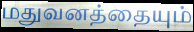
மதுவனத்தையும்